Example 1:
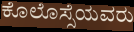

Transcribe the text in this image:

ಕೊಲೊಸ್ಸೆಯವರು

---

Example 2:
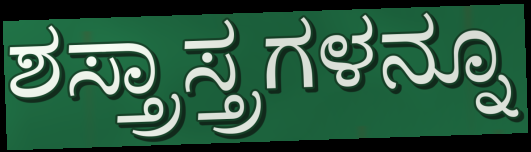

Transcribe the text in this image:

ಶಸ್ತ್ರಾಸ್ತ್ರಗಳನ್ನೂ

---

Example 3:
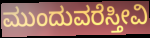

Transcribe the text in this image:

ಮುಂದುವರೆಸ್ತೀವಿ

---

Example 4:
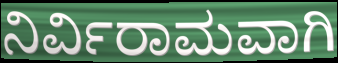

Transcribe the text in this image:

ನಿರ್ವಿರಾಮವಾಗಿ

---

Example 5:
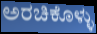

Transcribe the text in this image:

ಅರಚಿಕೊಳ್ಳು